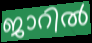
ജാറിൽ